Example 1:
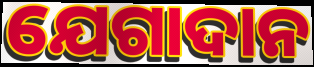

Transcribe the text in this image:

ଯେଗାଦାନ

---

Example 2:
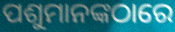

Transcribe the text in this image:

ପଶୁମାନଙ୍କଠାରେ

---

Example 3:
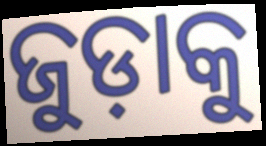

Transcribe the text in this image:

ଜୁଡ଼ାକୁ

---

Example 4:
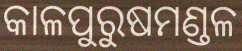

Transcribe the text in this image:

କାଳପୁରୁଷମଣ୍ଡଳ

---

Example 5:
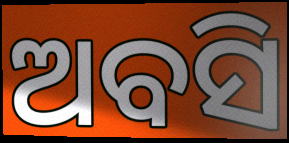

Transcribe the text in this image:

ଅବସି